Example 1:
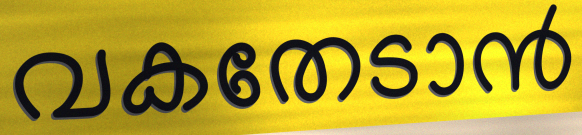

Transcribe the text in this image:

വകതേടാൻ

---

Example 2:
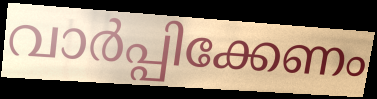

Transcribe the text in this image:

വാർപ്പിക്കേണം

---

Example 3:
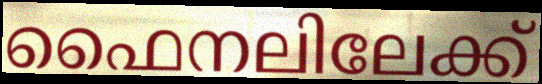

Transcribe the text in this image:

ഫൈനലിലേക്ക്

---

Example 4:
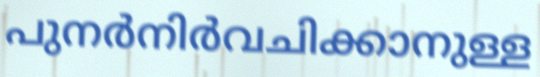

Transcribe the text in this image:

പുനർനിർവചിക്കാനുള്ള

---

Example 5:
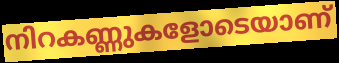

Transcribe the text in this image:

നിറകണ്ണുകളോടെയാണ്